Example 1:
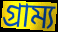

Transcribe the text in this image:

গ্রাম্য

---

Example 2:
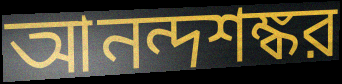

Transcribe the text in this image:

আনন্দশঙ্কর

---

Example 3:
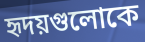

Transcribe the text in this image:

হৃদয়গুলোকে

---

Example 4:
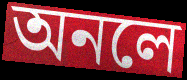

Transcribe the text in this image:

অনলে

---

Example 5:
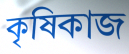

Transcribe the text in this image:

কৃষিকাজ